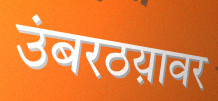
उंबरठय़ावर